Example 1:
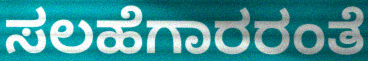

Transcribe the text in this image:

ಸಲಹೆಗಾರರಂತೆ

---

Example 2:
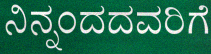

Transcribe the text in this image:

ನಿನ್ನಂದದವರಿಗೆ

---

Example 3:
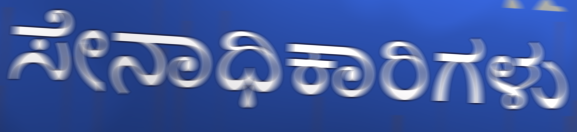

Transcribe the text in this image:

ಸೇನಾಧಿಕಾರಿಗಳು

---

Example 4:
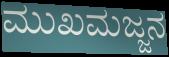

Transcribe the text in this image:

ಮುಖಮಜ್ಜನ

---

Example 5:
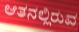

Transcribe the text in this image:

ಆತನಲ್ಲಿರುವ